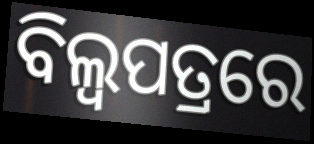
ବିଲ୍ଵପତ୍ରରେ